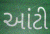
આંટી